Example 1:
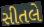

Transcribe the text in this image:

સીતલે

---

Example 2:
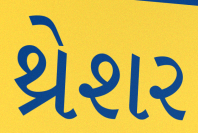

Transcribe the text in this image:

થ્રેશર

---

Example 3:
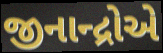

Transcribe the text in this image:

જીનાન્દ્રોએ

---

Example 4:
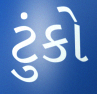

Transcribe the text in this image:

ટુંકો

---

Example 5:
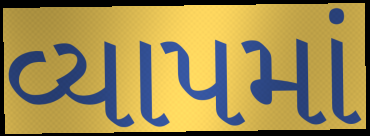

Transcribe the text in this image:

વ્યાપમાં